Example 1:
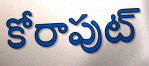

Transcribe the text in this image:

కోరాపుట్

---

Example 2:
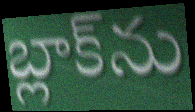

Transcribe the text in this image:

బ్లాక్‌ను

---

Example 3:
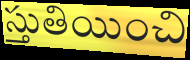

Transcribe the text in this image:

స్తుతియించి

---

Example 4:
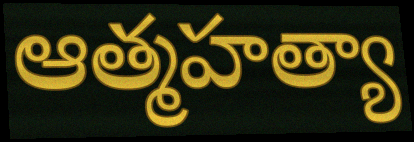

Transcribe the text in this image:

ఆత్మహత్యా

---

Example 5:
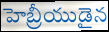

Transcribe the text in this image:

హెబ్రీయుడైన